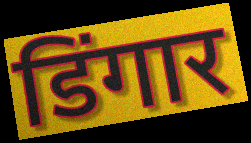
डिंगार